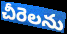
చీరెలను